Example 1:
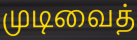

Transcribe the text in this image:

முடிவைத்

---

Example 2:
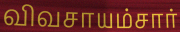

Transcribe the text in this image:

விவசாயம்சார்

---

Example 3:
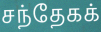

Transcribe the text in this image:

சந்தேகக்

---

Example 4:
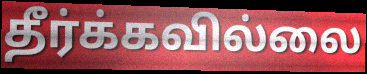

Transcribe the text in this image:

தீர்க்கவில்லை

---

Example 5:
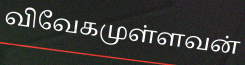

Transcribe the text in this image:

விவேகமுள்ளவன்